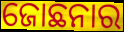
ଜୋଛନାର